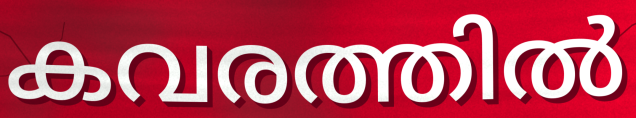
കവരത്തിൽ